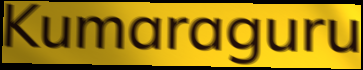
Kumaraguru